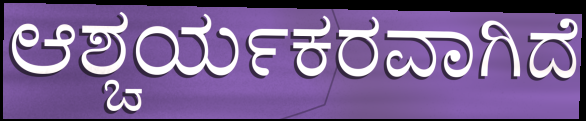
ಆಶ್ಚರ್ಯಕರವಾಗಿದೆ